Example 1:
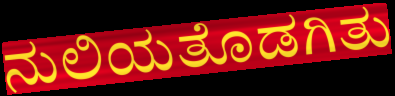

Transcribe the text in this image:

ನುಲಿಯತೊಡಗಿತು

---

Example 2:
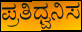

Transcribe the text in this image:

ಪ್ರತಿಧ್ವನಿಸ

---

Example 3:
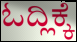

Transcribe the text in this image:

ಓದ್ಲಿಕ್ಕೆ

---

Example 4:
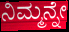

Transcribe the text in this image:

ನಿಮ್ಮನ್ನೇ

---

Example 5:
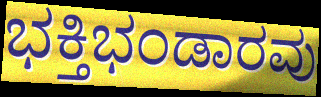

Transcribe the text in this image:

ಭಕ್ತಿಭಂಡಾರವು